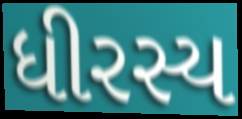
ધીરસ્ય